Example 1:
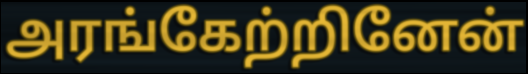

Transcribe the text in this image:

அரங்கேற்றினேன்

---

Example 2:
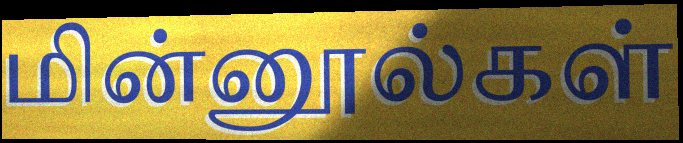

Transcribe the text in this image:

மின்னூல்கள்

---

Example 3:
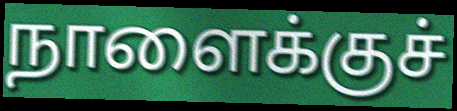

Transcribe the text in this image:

நாளைக்குச்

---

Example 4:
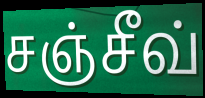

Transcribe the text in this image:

சஞ்சீவ்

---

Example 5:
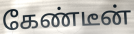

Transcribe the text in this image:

கேண்டீன்